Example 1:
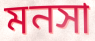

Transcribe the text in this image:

মনসা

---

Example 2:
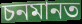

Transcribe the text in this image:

চনমানত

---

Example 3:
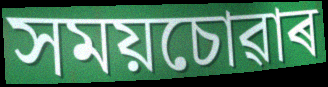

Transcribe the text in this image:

সময়চোৱাৰ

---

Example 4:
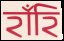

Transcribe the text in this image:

হাঁহি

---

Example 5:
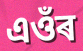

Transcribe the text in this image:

এওঁৰ